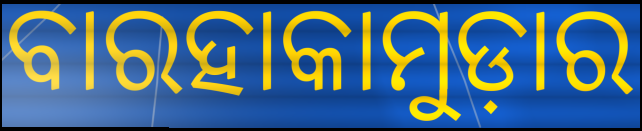
ବାରହାକାମୁଡ଼ାର